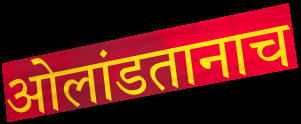
ओलांडतानाच